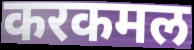
करकमल